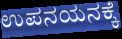
ಉಪನಯನಕ್ಕೆ